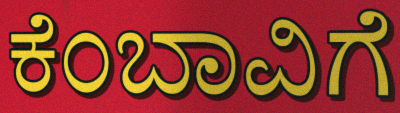
ಕೆಂಬಾವಿಗೆ